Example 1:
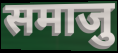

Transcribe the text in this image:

समाजु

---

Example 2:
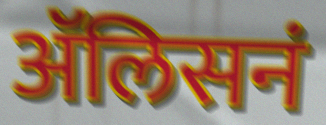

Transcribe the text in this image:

ॲलिसनं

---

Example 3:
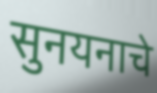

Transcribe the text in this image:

सुनयनाचे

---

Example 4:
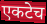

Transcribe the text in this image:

एकटेच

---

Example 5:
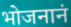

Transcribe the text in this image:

भोजनानं